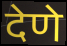
देणे